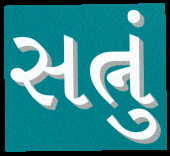
સત્નું